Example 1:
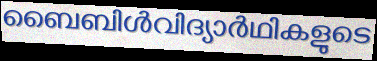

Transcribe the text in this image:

ബൈബിൾവിദ്യാർഥികളുടെ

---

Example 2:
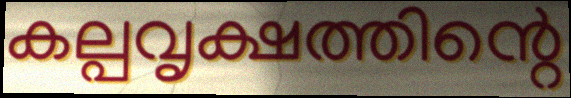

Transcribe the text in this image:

കല്പവൃക്ഷത്തിന്റെ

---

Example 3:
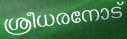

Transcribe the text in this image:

ശ്രീധരനോട്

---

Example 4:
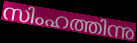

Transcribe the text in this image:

സിംഹത്തിന്നു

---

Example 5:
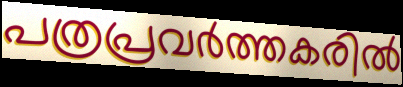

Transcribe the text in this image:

പത്രപ്രവർത്തകരിൽ